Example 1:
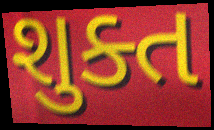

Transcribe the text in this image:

શુક્ત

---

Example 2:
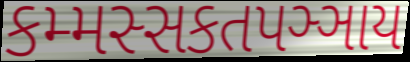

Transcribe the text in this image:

કમ્મસ્સકતપઞ્ઞાય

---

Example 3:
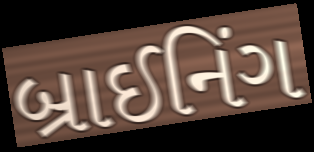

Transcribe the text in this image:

બ્રાઈનિંગ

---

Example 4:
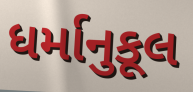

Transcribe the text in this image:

ધર્માનુકૂલ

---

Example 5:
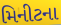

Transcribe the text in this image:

મિનીટના